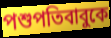
পশুপতিবাবুকে